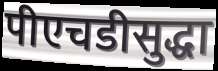
पीएचडीसुद्धा